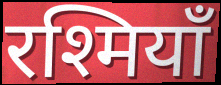
रश्मियाँ